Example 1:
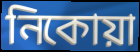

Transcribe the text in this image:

নিকোয়া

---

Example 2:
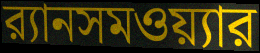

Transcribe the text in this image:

র‍্যানসমওয়্যার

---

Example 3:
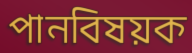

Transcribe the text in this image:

পানবিষয়ক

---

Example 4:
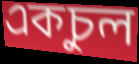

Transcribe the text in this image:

একচুল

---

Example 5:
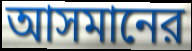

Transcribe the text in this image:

আসমানের